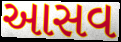
આસવ